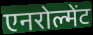
एनरोल्मेंट